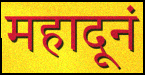
महादूनं